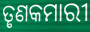
ତୃଣକମାରୀ